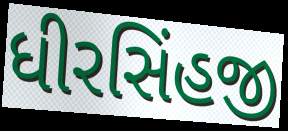
ધીરસિંહજી